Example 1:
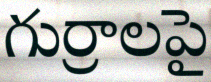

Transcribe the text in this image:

గుర్రాలపై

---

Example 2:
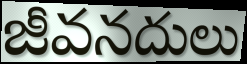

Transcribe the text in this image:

జీవనదులు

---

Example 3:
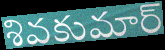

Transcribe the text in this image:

శివకుమార్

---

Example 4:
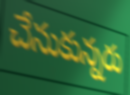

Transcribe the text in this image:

చేసుకున్నరు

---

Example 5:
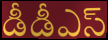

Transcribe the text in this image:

డీడీఎస్